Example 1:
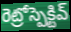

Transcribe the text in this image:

రెట్రోస్పెక్టివ్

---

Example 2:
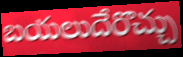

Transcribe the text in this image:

బయలుదేరొచ్చు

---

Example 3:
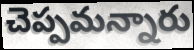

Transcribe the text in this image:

చెప్పమన్నారు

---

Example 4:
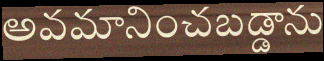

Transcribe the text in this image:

అవమానించబడ్డాను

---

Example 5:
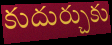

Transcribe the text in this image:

కుదుర్చుకు